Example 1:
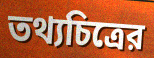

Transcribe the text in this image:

তথ্যচিত্রের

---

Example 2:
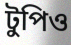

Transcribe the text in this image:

টুপিও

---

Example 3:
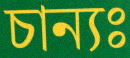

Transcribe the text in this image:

চান্যঃ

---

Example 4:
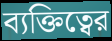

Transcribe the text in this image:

ব্যক্তিত্বের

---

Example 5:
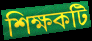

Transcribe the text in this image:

শিক্ষকটি